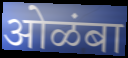
ओळंबा